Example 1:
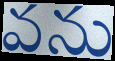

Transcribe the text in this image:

వను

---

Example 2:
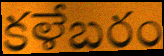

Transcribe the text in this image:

కళేబరం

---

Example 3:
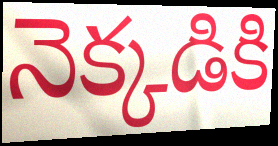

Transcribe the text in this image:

నెక్కడికి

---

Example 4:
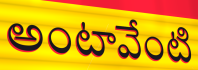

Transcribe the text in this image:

అంటావేంటి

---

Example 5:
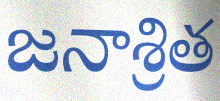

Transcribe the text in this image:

జనాశ్రిత